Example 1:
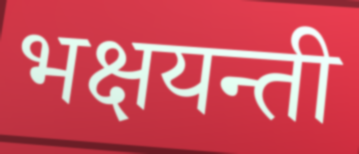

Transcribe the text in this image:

भक्षयन्ती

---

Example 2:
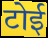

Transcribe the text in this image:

टोई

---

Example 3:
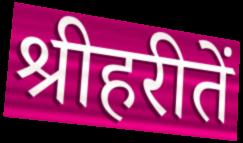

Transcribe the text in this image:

श्रीहरीतें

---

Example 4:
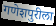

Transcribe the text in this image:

गणेशपुरीला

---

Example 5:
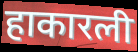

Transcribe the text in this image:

हाकारली